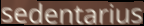
sedentarius